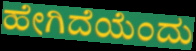
ಹೇಗಿದೆಯೆಂದು